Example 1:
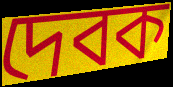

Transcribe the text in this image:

দেবক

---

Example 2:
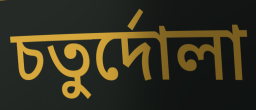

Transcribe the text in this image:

চতুর্দোলা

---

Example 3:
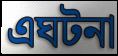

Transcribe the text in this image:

এঘটনা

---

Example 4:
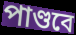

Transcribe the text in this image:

পাণ্ডবে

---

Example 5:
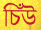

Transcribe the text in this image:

চিঁউ